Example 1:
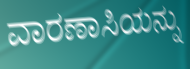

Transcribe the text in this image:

ವಾರಣಾಸಿಯನ್ನು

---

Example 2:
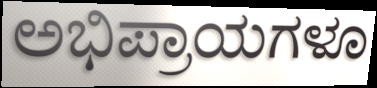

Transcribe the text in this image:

ಅಭಿಪ್ರಾಯಗಳೂ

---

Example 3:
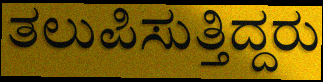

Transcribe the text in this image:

ತಲುಪಿಸುತ್ತಿದ್ದರು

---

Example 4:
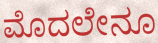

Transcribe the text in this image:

ಮೊದಲೇನೂ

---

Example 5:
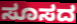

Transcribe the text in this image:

ಸೂಸದ